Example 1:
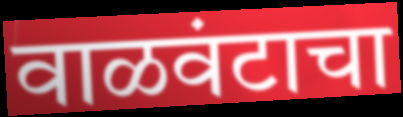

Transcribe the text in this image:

वाळवंटाचा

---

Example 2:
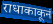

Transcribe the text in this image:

राधाकाकूनं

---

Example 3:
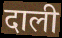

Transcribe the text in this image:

दाली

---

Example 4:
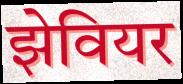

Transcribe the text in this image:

झेवियर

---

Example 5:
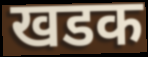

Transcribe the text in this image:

खडक